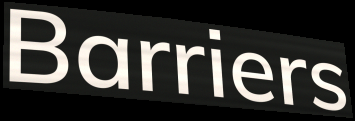
Barriers